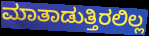
ಮಾತಾಡುತ್ತಿರಲಿಲ್ಲ